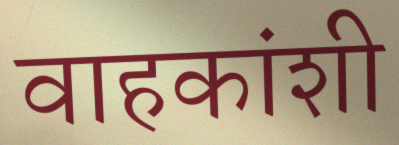
वाहकांशी